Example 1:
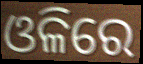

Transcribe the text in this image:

ଓଳିରେ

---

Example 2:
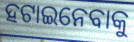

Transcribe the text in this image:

ହଟାଇନେବାକୁ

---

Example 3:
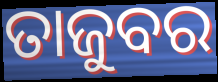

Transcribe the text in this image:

ତାଜୁବର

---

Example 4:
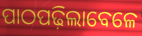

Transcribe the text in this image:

ପାଠପଢ଼ିଲାବେଳେ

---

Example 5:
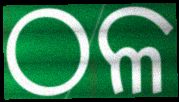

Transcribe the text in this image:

ଠଳ